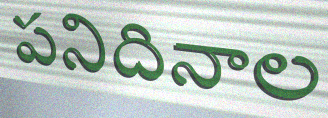
పనిదినాల